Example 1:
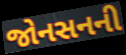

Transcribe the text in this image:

જોનસનની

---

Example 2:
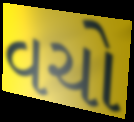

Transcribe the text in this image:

વચો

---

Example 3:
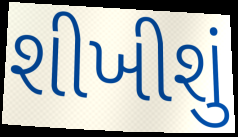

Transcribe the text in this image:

શીખીશું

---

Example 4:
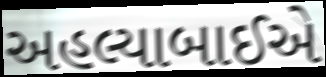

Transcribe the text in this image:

અહલ્યાબાઈએ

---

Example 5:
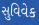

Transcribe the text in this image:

સુવિવેક